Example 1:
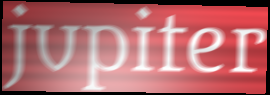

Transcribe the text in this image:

jupiter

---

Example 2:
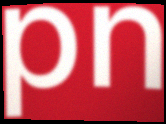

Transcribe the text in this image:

pn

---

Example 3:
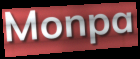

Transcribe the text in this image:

Monpa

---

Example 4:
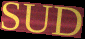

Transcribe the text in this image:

SUD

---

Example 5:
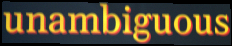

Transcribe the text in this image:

unambiguous